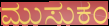
ಮುಸುಕಂ